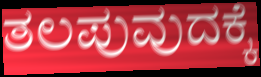
ತಲಪುವುದಕ್ಕೆ